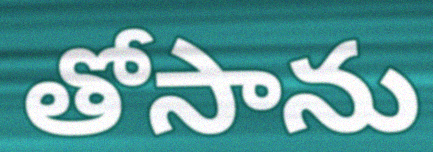
తోసాను